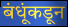
बंधूंकडून